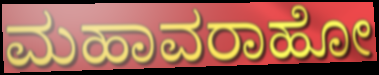
ಮಹಾವರಾಹೋ